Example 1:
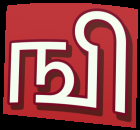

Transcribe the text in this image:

ஙி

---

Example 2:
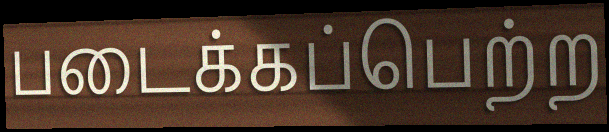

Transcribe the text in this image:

படைக்கப்பெற்ற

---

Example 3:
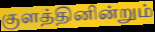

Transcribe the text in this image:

குளத்தினின்றும்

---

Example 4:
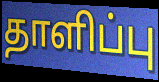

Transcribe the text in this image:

தாளிப்பு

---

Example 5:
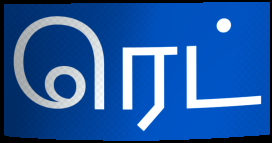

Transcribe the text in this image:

ரெட்